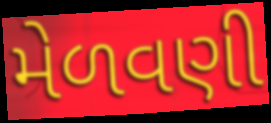
મેળવણી